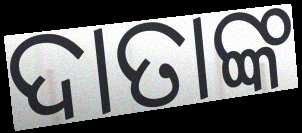
ଦାତାଙ୍କ